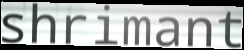
shrimant